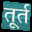
तूर्त